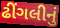
ઢીંગલીનું